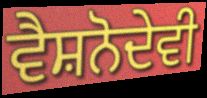
ਵੈਸ਼ਨੋਦੇਵੀ